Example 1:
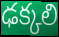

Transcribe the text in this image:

ఢక్కలి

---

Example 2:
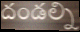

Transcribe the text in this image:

దండల్ని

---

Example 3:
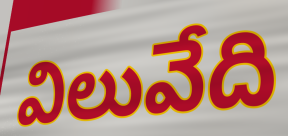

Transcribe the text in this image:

విలువేది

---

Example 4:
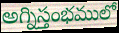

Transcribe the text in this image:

అగ్నిస్తంభములో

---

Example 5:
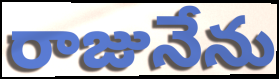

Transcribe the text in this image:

రాజునేను